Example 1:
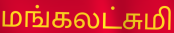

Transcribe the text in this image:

மங்கலட்சுமி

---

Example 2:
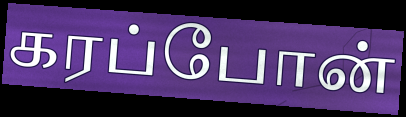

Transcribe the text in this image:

கரப்போன்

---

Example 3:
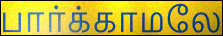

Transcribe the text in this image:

பார்க்காமலே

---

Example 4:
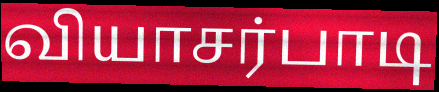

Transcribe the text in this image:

வியாசர்பாடி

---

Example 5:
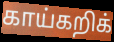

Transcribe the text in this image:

காய்கறிக்